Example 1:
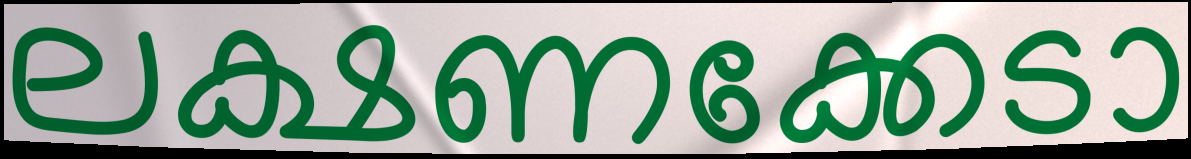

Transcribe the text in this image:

ലക്ഷണക്കേടാ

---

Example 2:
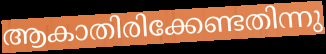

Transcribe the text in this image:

ആകാതിരിക്കേണ്ടതിന്നു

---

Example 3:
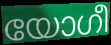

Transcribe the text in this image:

യോഗീ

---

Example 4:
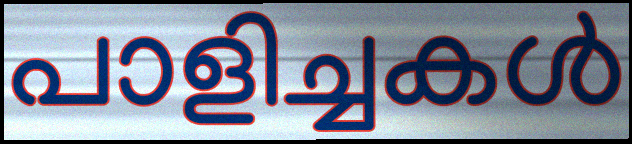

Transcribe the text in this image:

പാളിച്ചകൾ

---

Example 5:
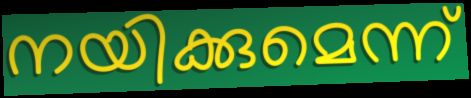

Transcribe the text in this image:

നയിക്കുമെന്ന്